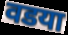
वडया